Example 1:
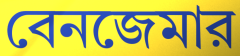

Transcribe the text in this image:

বেনজেমার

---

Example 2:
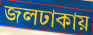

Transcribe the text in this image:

জলঢাকায়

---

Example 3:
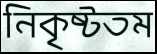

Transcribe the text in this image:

নিকৃষ্টতম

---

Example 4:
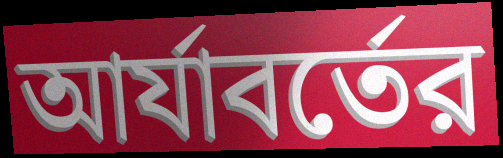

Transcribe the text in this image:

আর্যাবর্তের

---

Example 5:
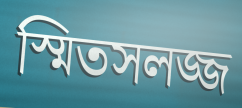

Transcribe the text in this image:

স্মিতসলজ্জ